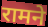
रामने